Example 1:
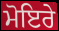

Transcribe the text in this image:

ਮੋਇਰੇ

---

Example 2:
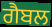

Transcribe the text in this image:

ਗੈਬਲ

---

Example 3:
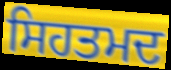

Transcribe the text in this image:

ਸਿਹਤਮਦ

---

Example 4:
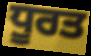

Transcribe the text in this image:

ਧੂਰਤ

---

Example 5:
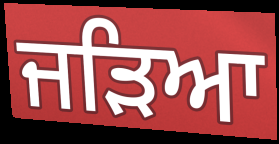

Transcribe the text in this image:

ਜੜਿਆ